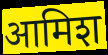
आमिश